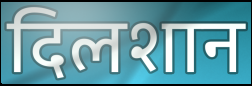
दिलशान